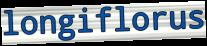
longiflorus